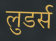
लुडर्स